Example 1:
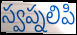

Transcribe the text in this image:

స్వప్నలిపి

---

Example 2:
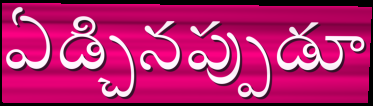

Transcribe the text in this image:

ఏడ్చినప్పుడూ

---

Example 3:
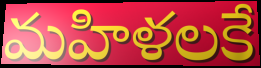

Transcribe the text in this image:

మహిళలకే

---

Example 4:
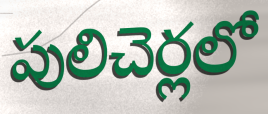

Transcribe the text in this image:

పులిచెర్లలో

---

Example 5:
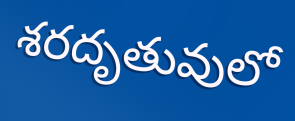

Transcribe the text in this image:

శరదృతువులో